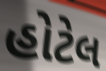
હોટેલ